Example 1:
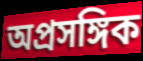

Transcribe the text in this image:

অপ্রসঙ্গিক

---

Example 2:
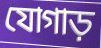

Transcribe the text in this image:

যোগাড়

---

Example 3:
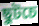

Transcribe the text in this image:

ছুটচে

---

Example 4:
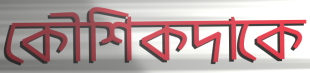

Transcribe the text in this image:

কৌশিকদাকে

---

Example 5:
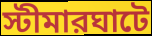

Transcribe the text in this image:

স্টীমারঘাটে